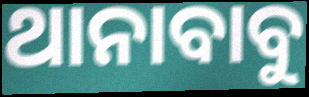
ଥାନାବାବୁ